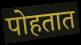
पोहतात